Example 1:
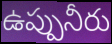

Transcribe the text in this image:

ఉప్పునీరు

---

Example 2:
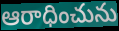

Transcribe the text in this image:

ఆరాధించును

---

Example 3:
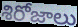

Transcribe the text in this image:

శిరోజాలు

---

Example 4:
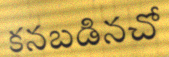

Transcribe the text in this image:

కనబడినచో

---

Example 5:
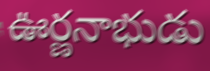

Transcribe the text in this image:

ఊర్ణనాభుడు